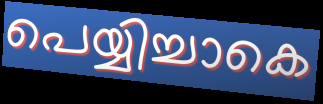
പെയ്യിച്ചാകെ